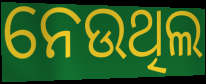
ନେଉଥିଲ